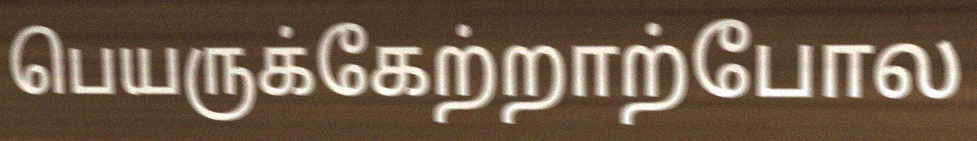
பெயருக்கேற்றாற்போல